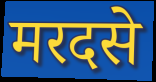
मरदसे